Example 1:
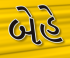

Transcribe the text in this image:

બેહે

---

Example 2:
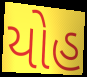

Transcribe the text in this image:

યોહ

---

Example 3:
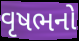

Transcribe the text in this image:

વૃષભનો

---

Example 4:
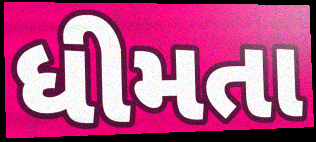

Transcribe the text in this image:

ધીમતા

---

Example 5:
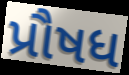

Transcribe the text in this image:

પ્રૌષધ